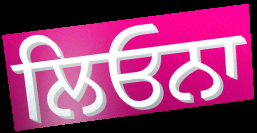
ਲਿਓਨਾ